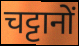
चट्टानों